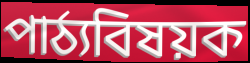
পাঠ্যবিষয়ক